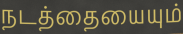
நடத்தையையும்